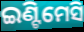
ଇଣ୍ଟିମେସି